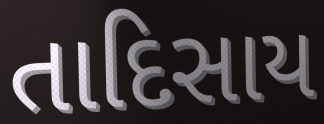
તાદિસાય